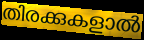
തിരക്കുകളാൽ